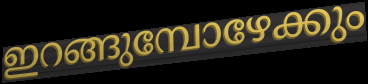
ഇറങ്ങുമ്പോഴേക്കും